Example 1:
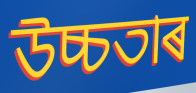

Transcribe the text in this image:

উচ্চতাৰ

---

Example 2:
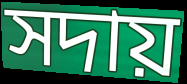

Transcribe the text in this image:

সদায়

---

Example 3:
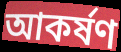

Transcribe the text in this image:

আকৰ্ষণ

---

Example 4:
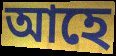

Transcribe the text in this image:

আহে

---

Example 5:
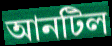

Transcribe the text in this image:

আনটিল